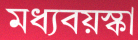
মধ্যবয়স্কা